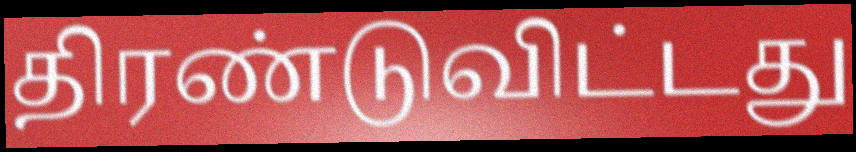
திரண்டுவிட்டது